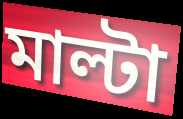
মাল্টা